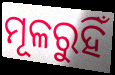
ମୂଳରୁହିଁ